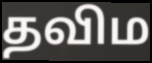
தவிம